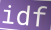
idf